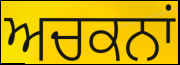
ਅਚਕਨਾਂ